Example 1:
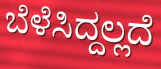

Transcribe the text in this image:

ಬೆಳೆಸಿದ್ದಲ್ಲದೆ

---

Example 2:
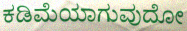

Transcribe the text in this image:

ಕಡಿಮೆಯಾಗುವುದೋ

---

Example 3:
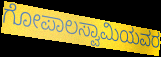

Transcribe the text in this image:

ಗೋಪಾಲಸ್ವಾಮಿಯವರ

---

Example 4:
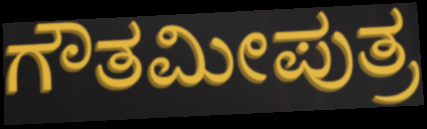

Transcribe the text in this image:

ಗೌತಮೀಪುತ್ರ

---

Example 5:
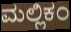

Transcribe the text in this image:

ಮಲ್ಲಿಕಂ